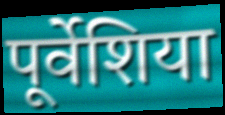
पूर्वेशिया